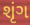
શૃંગ